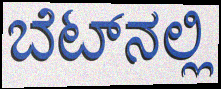
ಬೆಟ್‌ನಲ್ಲಿ